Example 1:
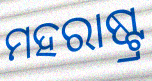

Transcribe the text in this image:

ମହରାଷ୍ଟ୍ର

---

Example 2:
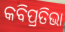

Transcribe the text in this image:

କବିପ୍ରତିଭା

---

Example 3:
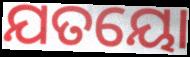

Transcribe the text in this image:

ଯତୟୋ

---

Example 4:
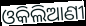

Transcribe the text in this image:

ଓକିଲିଆଣୀ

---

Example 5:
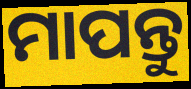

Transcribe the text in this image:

ମାପନ୍ତୁ